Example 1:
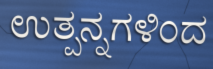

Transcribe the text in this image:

ಉತ್ಪನ್ನಗಳಿಂದ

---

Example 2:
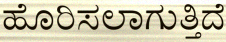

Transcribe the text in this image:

ಹೊರಿಸಲಾಗುತ್ತಿದೆ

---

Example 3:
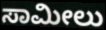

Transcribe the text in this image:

ಸಾಮೀಲು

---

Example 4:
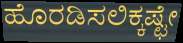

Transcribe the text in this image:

ಹೊರಡಿಸಲಿಕ್ಕಷ್ಟೇ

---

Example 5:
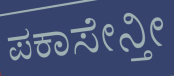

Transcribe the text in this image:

ಪಕಾಸೇನ್ತೀ